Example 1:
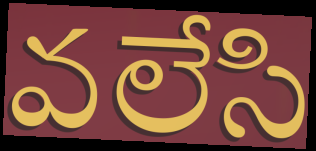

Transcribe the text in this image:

వలేసి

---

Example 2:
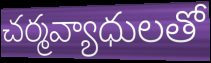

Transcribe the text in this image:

చర్మవ్యాధులతో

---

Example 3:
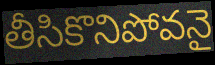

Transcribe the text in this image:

తీసికొనిపోవనై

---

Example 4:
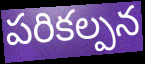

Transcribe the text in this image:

పరికల్పన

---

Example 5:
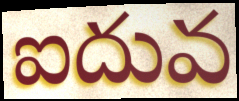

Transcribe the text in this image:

ఐదువ